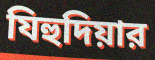
যিহুদিয়ার